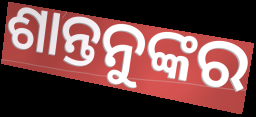
ଶାନ୍ତନୁଙ୍କର